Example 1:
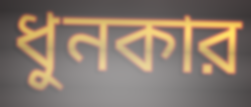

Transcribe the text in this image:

ধুনকার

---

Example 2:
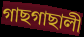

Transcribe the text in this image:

গাছগাছালী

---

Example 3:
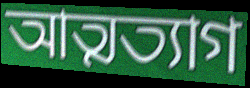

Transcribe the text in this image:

আত্মত্যাগ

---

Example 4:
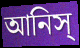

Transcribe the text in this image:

আনিস্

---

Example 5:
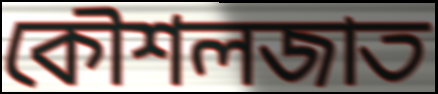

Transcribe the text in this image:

কৌশলজাত